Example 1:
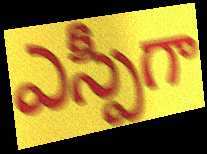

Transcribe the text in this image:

ఎస్పీగా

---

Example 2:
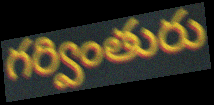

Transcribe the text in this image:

గర్వింతురు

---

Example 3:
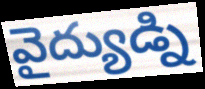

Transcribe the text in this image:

వైద్యుడ్ని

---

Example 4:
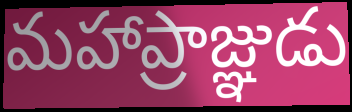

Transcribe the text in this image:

మహాప్రాజ్ఞుడు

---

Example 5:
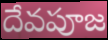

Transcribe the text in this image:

దేవపూజ